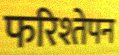
फरिश्तेपन